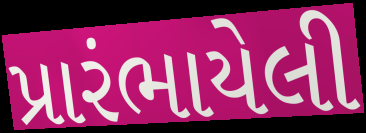
પ્રારંભાયેલી